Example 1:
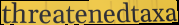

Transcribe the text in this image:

threatenedtaxa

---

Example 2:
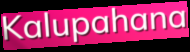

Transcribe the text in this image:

Kalupahana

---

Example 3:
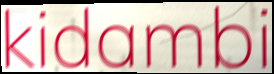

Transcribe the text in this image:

kidambi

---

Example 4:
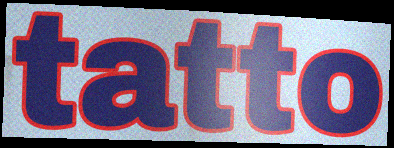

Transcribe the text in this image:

tatto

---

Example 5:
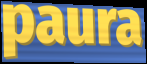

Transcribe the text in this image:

paura